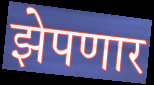
झेपणार